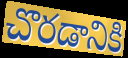
చొరడానికి